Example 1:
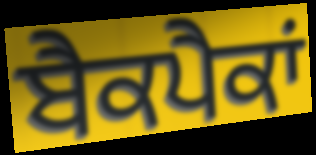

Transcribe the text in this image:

ਬੈਕਪੈਕਾਂ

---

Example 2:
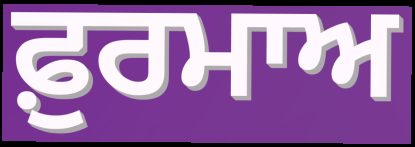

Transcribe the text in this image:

ਫ਼ੁਰਮਾਅ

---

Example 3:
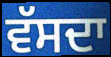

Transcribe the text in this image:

ਵੱਸਦਾ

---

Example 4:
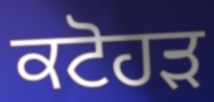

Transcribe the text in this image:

ਕਟੋਹੜ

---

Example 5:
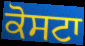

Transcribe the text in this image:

ਕੋਸਟਾ